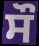
ਸੌ